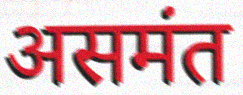
असमंत